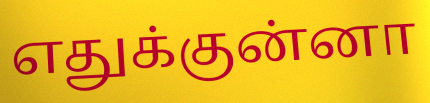
எதுக்குன்னா